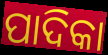
ପାଦିକା